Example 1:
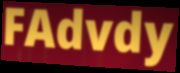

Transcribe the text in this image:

FAdvdy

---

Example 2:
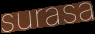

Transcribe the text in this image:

surasa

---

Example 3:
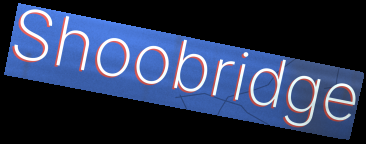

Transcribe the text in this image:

Shoobridge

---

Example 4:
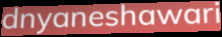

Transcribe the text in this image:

dnyaneshawari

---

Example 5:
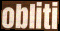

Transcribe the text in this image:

obliti